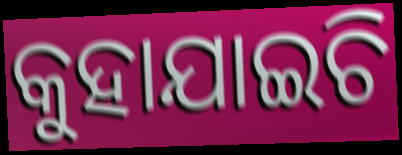
କୁହାଯାଇଚି